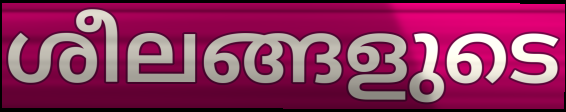
ശീലങ്ങളുടെ